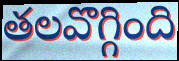
తలవొగ్గింది